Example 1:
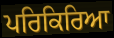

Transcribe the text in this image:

ਪਰਿਕਿਰਿਆ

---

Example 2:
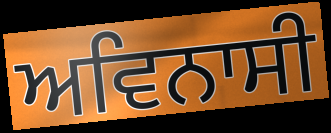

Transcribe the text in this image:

ਅਵਿਨਾਸੀ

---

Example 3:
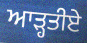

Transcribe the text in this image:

ਆੜ੍ਹਤੀਏ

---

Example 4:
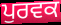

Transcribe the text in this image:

ਪੁਰਵਕ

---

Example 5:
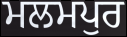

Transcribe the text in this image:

ਮਲਮਪੁਰ